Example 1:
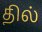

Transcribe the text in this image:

தில்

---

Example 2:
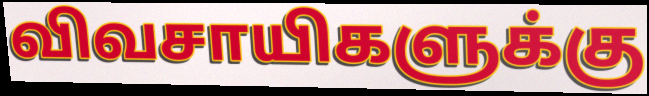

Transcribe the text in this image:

விவசாயிகளுக்கு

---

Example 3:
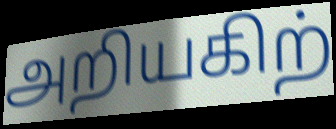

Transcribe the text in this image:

அறியகிற்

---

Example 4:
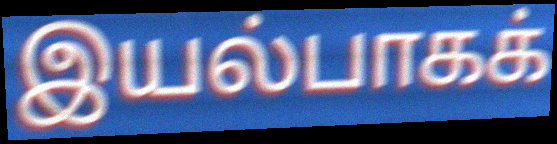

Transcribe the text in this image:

இயல்பாகக்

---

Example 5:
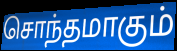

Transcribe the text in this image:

சொந்தமாகும்